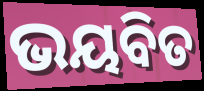
ଭୟବିତ